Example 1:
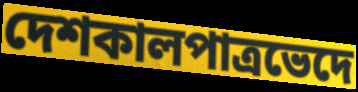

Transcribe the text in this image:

দেশকালপাত্রভেদে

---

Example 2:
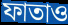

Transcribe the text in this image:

ফাতাও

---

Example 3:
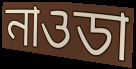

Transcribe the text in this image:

নাওডা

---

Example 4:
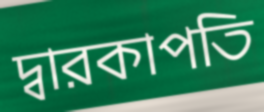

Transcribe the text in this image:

দ্বারকাপতি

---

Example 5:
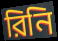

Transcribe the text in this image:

রিনি